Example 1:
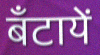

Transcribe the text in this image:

बँटायें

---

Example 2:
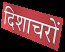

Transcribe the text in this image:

दिशाचरों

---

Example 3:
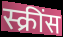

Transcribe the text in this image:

स्क्रींस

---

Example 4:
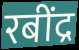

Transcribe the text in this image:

रबींद्र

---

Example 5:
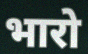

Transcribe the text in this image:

भारो